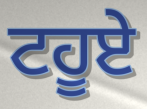
ਟਹੂਏ